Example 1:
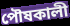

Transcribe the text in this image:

পৌষকালী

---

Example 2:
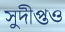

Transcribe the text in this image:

সুদীপ্তও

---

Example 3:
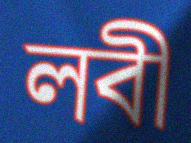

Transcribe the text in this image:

লবী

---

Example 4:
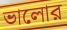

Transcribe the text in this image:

ভালোর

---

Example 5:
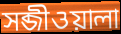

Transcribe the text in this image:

সব্জীওয়ালা